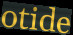
otide